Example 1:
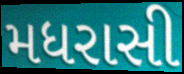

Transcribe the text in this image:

મધરાસી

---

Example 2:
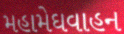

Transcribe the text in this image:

મહામેઘવાહન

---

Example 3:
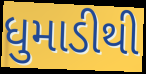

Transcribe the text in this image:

ધુમાડીથી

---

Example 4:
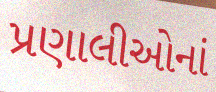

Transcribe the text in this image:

પ્રણાલીઓનાં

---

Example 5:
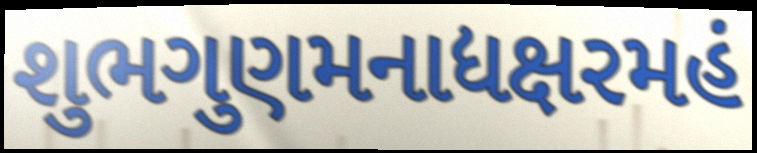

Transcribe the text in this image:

શુભગુણમનાદ્યક્ષરમહં